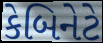
કેબિનેટે